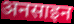
अनसाइन